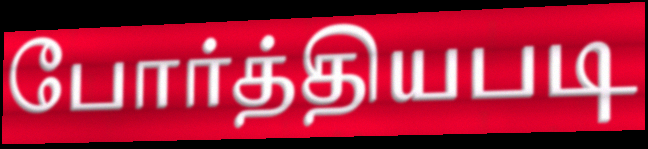
போர்த்தியபடி